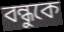
বন্ধুকে